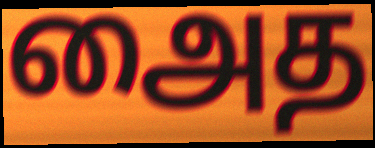
அைத